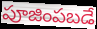
పూజింపబడే